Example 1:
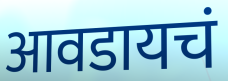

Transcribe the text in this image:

आवडायचं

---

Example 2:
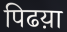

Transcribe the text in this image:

पिढय़ा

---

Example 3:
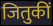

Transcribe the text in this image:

जितुकीं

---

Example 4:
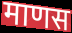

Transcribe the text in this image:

माणस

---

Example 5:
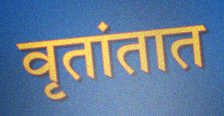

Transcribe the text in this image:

वृतांतात